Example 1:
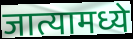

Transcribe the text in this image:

जात्यामध्ये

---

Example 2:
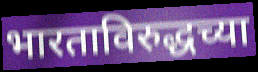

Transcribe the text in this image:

भारताविरुद्धच्या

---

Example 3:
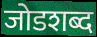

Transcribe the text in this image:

जोडशब्द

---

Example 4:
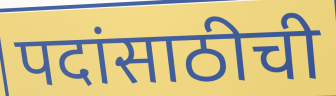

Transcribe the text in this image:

पदांसाठीची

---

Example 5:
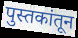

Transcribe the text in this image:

पुस्तकांतून